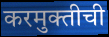
करमुक्तीची